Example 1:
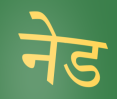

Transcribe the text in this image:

नेड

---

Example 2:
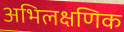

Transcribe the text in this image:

अभिलक्षणिक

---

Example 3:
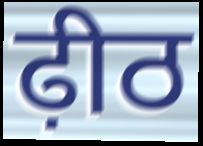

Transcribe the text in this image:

ढ़ीठ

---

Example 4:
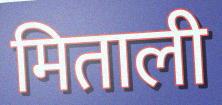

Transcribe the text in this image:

मिताली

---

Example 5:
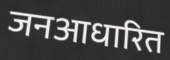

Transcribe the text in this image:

जनआधारित